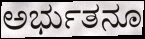
ಅರ್ಭುತನೂ